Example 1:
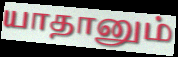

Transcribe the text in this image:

யாதானும்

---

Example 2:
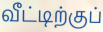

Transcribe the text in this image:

வீட்டிற்குப்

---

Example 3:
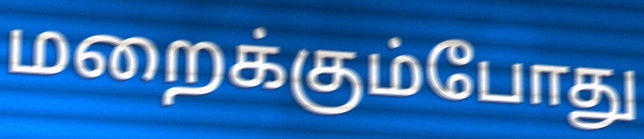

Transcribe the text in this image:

மறைக்கும்போது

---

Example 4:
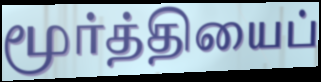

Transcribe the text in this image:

மூர்த்தியைப்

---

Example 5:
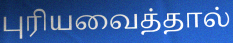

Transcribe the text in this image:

புரியவைத்தால்